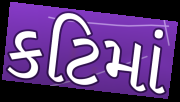
કટિમાં